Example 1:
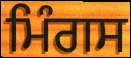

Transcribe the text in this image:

ਮਿੰਗਸ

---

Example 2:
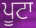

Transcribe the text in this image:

ਪੂਟਾ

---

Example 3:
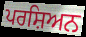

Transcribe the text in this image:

ਪਰਸ਼ਿਅਨ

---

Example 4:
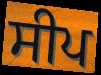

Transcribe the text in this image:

ਸੀਪ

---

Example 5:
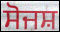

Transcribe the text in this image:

ਸੋਜਸ਼